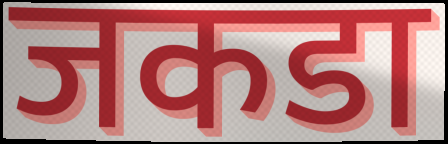
जकडा